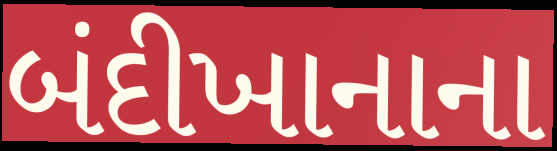
બંદીખાનાના